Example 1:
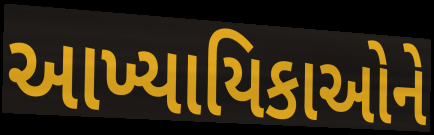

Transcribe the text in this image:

આખ્યાયિકાઓને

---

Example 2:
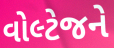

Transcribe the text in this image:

વોલ્ટેજને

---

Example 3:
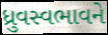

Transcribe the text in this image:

ધ્રુવસ્વભાવને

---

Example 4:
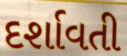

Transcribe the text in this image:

દર્શાવતી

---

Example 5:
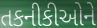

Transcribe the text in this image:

તકનીકીઓને